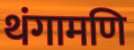
थंगामणि